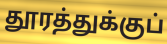
தூரத்துக்குப்